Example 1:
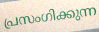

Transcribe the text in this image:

പ്രസംഗിക്കുന്ന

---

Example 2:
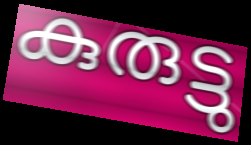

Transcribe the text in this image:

കുരുട്ടു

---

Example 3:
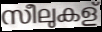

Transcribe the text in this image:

സീലുകള്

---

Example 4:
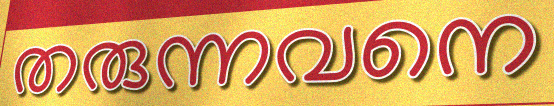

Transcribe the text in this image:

തരുന്നവനെ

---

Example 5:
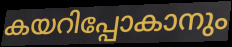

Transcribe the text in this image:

കയറിപ്പോകാനും